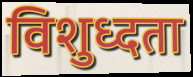
विशुध्दता